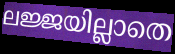
ലജ്ജയില്ലാതെ